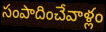
సంపాదించేవాళ్లం